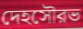
দেহসৌরভ